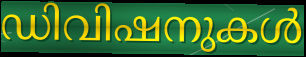
ഡിവിഷനുകൾ